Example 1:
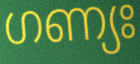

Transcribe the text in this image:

ഗണ്യഃ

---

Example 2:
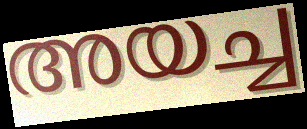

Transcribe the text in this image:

അയച്ച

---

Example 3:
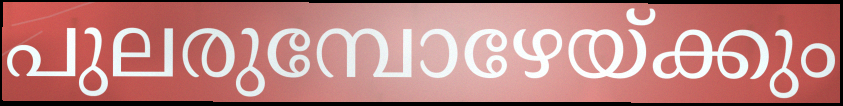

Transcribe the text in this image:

പുലരുമ്പോഴേയ്ക്കും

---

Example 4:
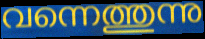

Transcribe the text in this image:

വന്നെത്തുന്നു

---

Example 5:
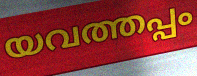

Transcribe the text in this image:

യവത്തപ്പം